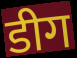
डीग